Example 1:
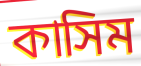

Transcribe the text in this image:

কাসিম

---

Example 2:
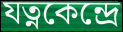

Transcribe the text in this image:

যত্নকেন্দ্রে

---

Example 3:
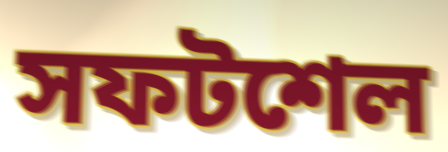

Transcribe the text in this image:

সফটশেল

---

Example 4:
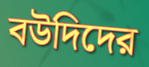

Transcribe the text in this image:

বউদিদের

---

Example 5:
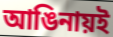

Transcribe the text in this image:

আঙিনায়ই